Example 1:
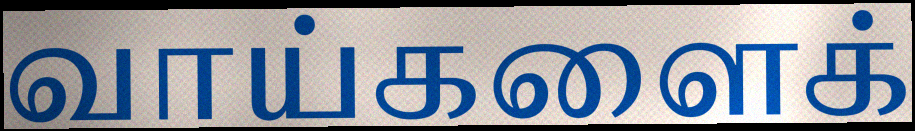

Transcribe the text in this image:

வாய்களைக்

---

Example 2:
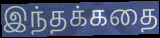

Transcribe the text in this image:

இந்தக்கதை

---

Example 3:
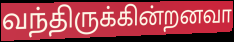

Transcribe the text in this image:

வந்திருக்கின்றனவா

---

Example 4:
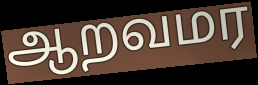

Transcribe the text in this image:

ஆறவமர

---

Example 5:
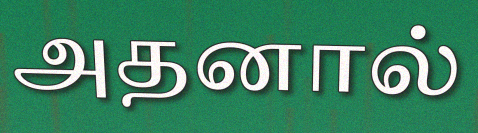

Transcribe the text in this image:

அதனால்